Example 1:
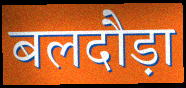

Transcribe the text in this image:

बलदौड़ा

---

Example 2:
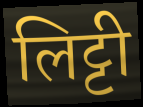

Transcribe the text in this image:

लिट्टी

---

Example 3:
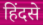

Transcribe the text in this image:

हिंदसे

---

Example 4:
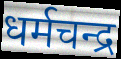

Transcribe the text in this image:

धर्मचन्द्र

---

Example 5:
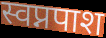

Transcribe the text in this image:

स्वप्नपाश